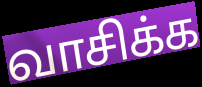
வாசிக்க